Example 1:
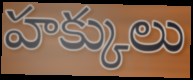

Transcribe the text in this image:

హక్కులు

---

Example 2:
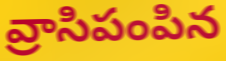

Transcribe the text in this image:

వ్రాసిపంపిన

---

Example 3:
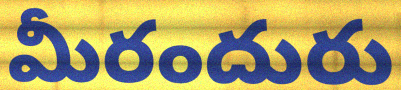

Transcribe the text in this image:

మీరందురు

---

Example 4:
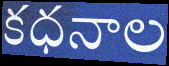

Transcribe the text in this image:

కధనాల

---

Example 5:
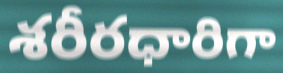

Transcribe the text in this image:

శరీరధారిగా